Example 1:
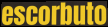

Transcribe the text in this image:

escorbuto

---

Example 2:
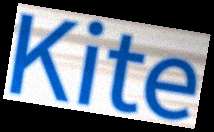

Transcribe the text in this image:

Kite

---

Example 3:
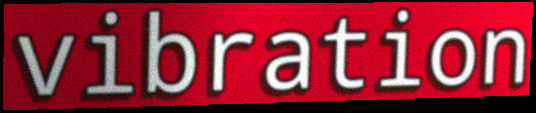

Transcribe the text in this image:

vibration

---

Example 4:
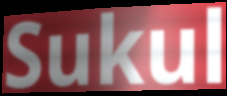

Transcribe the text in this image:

Sukul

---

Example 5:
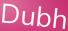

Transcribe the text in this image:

Dubh